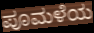
ಪೂಮಳೆಯ